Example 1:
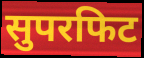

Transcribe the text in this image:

सुपरफिट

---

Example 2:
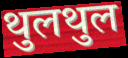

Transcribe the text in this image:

थुलथुल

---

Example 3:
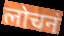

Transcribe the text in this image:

लोचनं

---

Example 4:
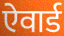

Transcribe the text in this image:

ऐवार्ड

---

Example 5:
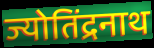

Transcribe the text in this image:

ज्योतिंद्रनाथ